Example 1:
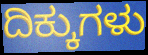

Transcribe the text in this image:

ದಿಕ್ಕುಗಳು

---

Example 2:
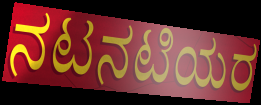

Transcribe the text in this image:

ನಟನಟಿಯರ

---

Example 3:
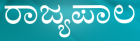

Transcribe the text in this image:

ರಾಜ್ಯಪಾಲ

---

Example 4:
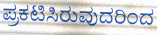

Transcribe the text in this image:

ಪ್ರಕಟಿಸಿರುವುದರಿಂದ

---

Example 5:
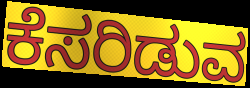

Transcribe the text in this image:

ಕೆಸರಿಡುವ